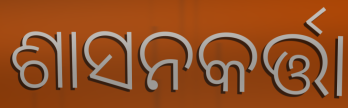
ଶାସନକର୍ତ୍ତା